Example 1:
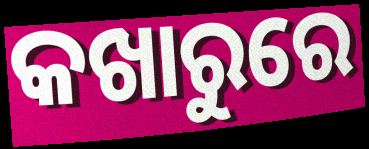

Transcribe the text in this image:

କଖାରୁରେ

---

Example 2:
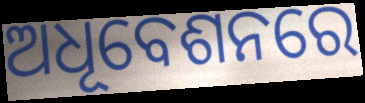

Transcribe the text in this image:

ଅଧୂବେଶନରେ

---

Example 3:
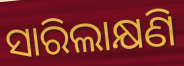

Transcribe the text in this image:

ସାରିଲାକ୍ଷଣି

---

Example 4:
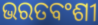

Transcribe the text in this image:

ଭରତବଂଶୀ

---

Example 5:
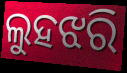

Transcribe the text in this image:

ଲୁହଝରି